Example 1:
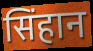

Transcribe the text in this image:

सिंहान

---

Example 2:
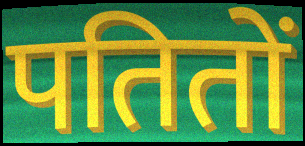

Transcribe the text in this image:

पतितों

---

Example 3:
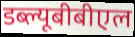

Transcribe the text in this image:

डब्ल्यूबीबीएल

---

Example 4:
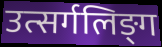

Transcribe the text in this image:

उत्सर्गलिङ्ग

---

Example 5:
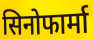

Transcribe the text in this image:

सिनोफार्मा